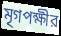
মৃগপক্ষীর